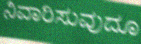
ನಿವಾರಿಸುವುದೂ